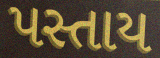
પસ્તાય